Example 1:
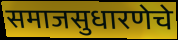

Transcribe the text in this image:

समाजसुधारणेचे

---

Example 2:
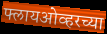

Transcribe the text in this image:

फ्लायओव्हरच्या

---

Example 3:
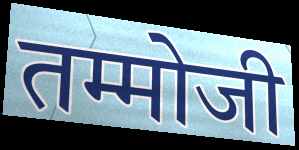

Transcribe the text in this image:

तम्मोजी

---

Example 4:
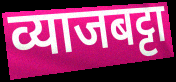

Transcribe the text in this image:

व्याजबट्टा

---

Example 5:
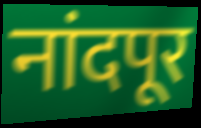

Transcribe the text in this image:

नांदपूर